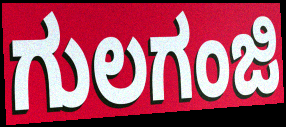
ಗುಲಗಂಜಿ